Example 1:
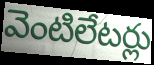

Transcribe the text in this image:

వెంటిలేటర్లు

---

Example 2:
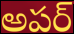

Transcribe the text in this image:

అపర్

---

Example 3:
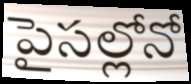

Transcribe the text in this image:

పైసల్లోనో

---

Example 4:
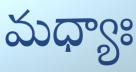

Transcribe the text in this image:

మధ్యాః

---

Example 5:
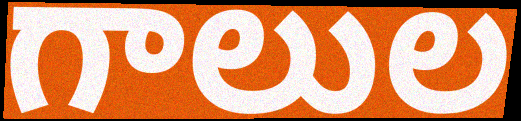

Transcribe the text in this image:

గాలుల